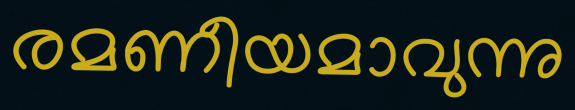
രമണീയമാവുന്നു